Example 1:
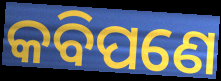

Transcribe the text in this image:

କବିପଣେ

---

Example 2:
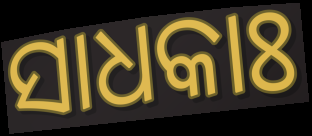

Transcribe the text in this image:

ସାଧକାଃ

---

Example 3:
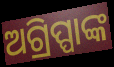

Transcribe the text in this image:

ଅଗ୍ରିପ୍ପାଙ୍କ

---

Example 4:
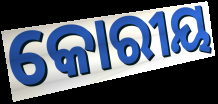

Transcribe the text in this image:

କୋରୀୟ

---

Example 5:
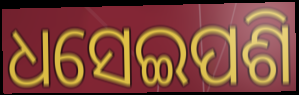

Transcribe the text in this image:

ଧସେଇପଶି